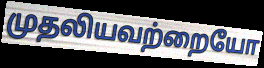
முதலியவற்றையோ